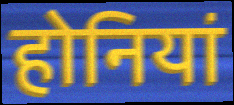
होनियां